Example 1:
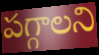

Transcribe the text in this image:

పగ్గాలని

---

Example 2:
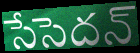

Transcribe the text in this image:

సేసెదన్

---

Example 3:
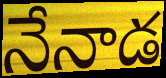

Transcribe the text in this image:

నేనాడ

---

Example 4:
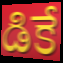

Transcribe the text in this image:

డికే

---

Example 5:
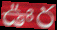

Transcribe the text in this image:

ఊర